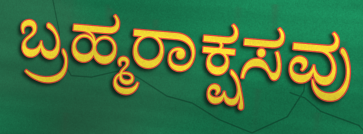
ಬ್ರಹ್ಮರಾಕ್ಷಸವು